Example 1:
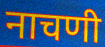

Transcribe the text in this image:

नाचणी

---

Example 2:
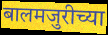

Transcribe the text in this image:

बालमजुरीच्या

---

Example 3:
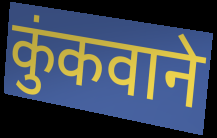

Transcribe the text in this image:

कुंकवाने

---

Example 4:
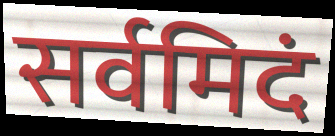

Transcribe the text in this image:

सर्वमिदं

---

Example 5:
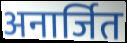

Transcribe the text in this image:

अनार्जित